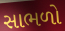
સાભળો